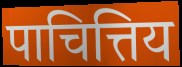
पाचित्तिय